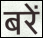
बरें